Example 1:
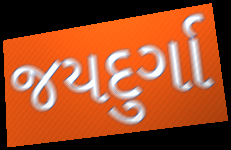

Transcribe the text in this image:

જયદુર્ગા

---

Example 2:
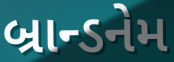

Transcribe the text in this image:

બ્રાન્ડનેમ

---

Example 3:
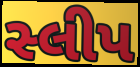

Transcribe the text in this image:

સ્લીપ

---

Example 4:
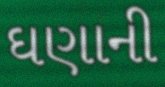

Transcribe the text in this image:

ઘણાની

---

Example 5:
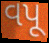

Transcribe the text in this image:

વપૂ